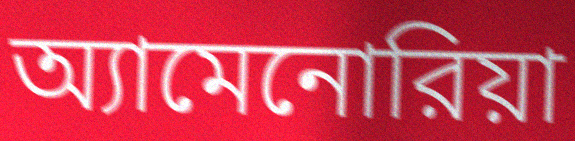
অ্যামেনোরিয়া